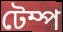
টেম্প